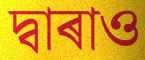
দ্বাৰাও